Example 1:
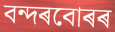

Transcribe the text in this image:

বন্দৰবোৰৰ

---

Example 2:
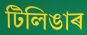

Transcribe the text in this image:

টিলিঙাৰ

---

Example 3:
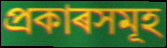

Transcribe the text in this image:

প্ৰকাৰসমূহ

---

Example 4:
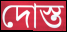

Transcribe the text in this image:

দোস্ত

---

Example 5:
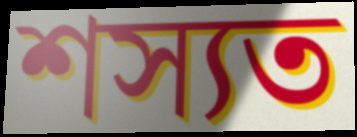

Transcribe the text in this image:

শস্যত